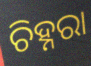
ଚିହ୍ନରା